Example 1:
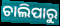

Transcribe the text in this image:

ଚାଲିପାରୁ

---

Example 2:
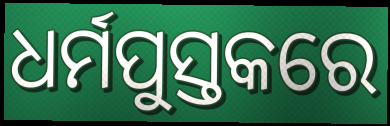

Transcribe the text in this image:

ଧର୍ମପୁସ୍ତକରେ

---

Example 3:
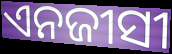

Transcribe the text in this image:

ଏନଜୀସୀ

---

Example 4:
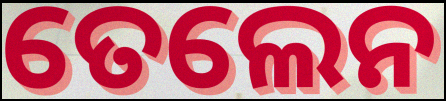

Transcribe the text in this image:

ତେଲେନ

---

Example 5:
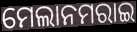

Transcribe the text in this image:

ମେଲାନମରାଇ